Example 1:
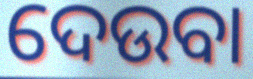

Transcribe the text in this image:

ଦେଉବା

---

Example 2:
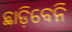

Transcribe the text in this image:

ଛାଡ଼ିବେନି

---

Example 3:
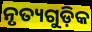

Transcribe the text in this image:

ନୃତ୍ୟଗୁଡ଼ିକ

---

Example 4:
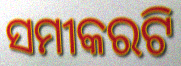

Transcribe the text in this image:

ସମୀକରଟି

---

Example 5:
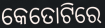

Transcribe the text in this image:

କେତୋଟିରେ